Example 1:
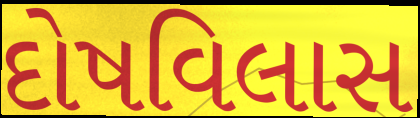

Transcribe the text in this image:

દોષવિલાસ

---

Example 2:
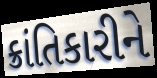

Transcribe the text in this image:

ક્રાંતિકારીને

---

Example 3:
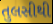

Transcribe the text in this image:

તુલસીથી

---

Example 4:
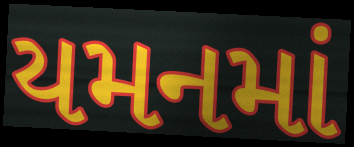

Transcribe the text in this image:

યમનમાં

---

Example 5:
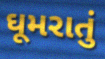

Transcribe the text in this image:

ઘૂમરાતું